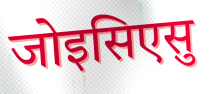
जोइसिएसु